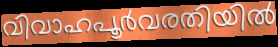
വിവാഹപൂർവരതിയിൽ